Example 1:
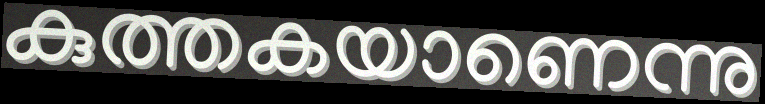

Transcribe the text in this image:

കുത്തകയാണെന്നു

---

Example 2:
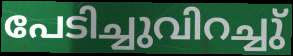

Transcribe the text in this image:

പേടിച്ചുവിറച്ചു്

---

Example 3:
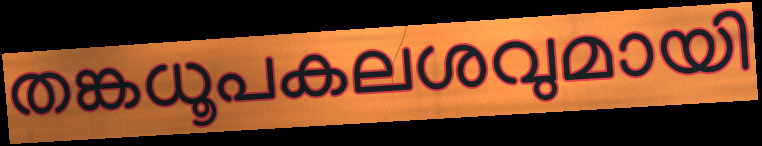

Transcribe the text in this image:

തങ്കധൂപകലശവുമായി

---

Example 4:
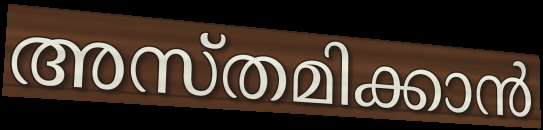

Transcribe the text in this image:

അസ്തമിക്കാൻ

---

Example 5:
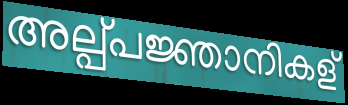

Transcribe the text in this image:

അല്പ്പജ്ഞാനികള്